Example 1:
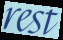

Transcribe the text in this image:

rest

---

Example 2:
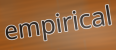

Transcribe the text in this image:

empirical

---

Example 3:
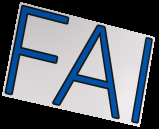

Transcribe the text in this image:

FAI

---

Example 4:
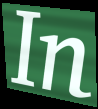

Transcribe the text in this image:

In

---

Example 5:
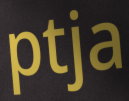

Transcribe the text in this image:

ptja